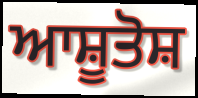
ਆਸ਼ੂਤੋਸ਼